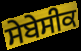
ਸੇਬੇਸੀਕ